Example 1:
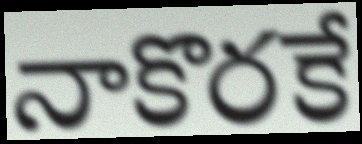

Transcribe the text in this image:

నాకొరకే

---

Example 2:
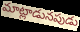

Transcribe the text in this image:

మాట్లాడునపుడు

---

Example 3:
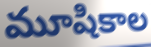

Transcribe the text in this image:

మూషికాల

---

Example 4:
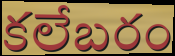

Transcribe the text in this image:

కలేబరం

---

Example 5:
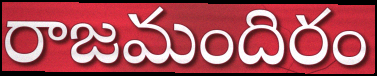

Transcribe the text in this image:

రాజమందిరం